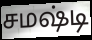
சமஷ்டி